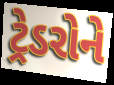
ટ્રેડરોને